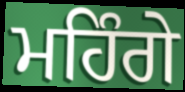
ਮਹਿੰਗੇ